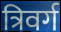
त्रिवर्ग